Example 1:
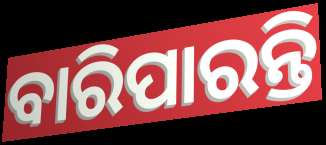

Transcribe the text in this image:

ବାରିପାରନ୍ତି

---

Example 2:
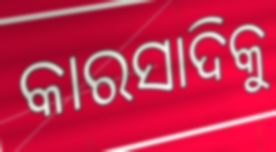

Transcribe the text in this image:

କାରସାଦିକୁ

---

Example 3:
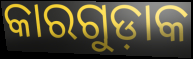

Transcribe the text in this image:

କାରଗୁଡ଼ାକ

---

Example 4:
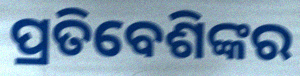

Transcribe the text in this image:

ପ୍ରତିବେଶିଙ୍କର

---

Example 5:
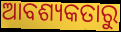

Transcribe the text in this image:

ଆବଶ୍ୟକତାରୁ